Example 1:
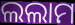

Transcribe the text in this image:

ଲଲାମ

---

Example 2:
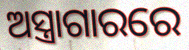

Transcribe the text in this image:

ଅସ୍ତ୍ରାଗାରରେ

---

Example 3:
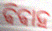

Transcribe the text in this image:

ଵିଵାହ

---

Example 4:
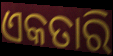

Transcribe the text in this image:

ଏକତାରି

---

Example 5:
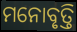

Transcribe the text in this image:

ମନୋବୃତ୍ତି